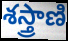
శస్త్రాణి